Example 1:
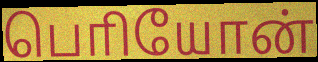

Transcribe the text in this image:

பெரியோன்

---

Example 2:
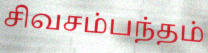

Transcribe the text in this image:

சிவசம்பந்தம்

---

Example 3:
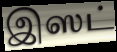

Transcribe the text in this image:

இஸட்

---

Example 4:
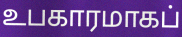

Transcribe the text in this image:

உபகாரமாகப்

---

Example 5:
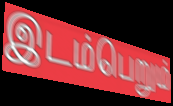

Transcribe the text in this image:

இடம்பெறும்